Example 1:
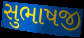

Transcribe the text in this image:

સુભાષજી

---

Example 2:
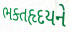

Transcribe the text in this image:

ભક્તહૃદયને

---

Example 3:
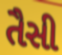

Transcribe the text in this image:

તૈસી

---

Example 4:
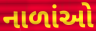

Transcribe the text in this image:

નાળાંઓ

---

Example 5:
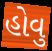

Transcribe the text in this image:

હોવુ